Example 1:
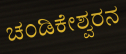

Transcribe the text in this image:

ಚಂಡಿಕೇಶ್ವರನ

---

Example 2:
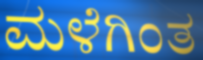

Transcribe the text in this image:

ಮಳೆಗಿಂತ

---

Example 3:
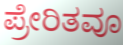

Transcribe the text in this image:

ಪ್ರೇರಿತವೂ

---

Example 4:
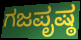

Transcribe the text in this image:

ಗಜಪೃಷ್ಠ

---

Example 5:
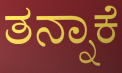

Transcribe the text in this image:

ತನ್ನಾಕೆ